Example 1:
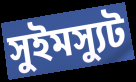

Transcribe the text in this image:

সুইমস্যুট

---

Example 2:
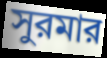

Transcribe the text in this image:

সুরমার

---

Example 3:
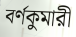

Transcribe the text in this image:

বর্ণকুমারী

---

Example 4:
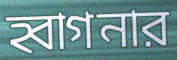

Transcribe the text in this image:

হ্বাগনার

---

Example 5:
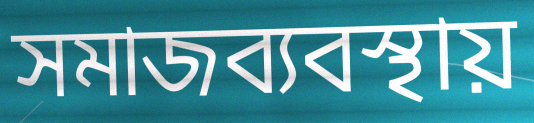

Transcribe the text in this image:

সমাজব্যবস্থায়